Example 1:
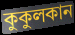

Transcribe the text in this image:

কুকুলকান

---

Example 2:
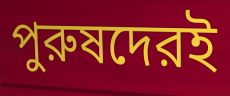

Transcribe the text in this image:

পুরুষদেরই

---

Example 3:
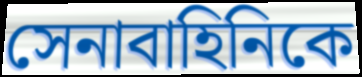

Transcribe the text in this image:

সেনাবাহিনিকে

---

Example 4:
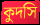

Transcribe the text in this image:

কুদসি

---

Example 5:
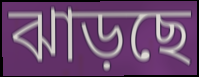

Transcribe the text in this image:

ঝাড়ছে